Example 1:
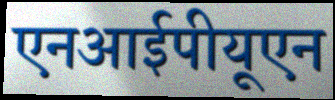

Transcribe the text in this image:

एनआईपीयूएन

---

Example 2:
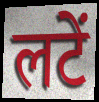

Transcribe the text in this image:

लटें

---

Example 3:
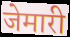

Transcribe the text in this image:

जेमारी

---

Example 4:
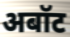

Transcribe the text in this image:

अबॉट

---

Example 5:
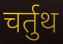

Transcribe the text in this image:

चर्तुथ